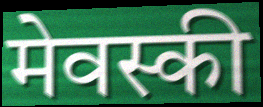
मेवस्की